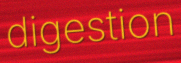
digestion